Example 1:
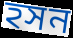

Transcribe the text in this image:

হসন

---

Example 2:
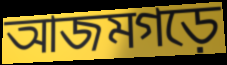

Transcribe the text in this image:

আজমগড়ে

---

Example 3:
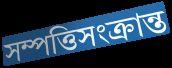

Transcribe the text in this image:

সম্পত্তিসংক্রান্ত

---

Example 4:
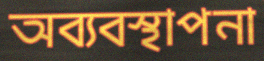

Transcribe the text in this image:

অব্যবস্থাপনা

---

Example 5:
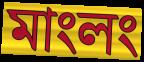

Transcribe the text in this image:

মাংলং